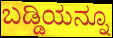
ಬಡ್ಡಿಯನ್ನೂ